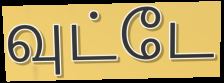
வுட்டே